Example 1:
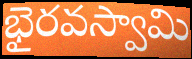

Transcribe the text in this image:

భైరవస్వామి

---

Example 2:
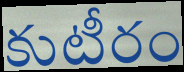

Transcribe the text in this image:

కుటీరం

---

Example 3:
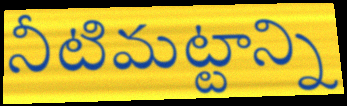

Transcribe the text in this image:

నీటిమట్టాన్ని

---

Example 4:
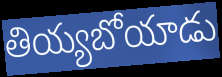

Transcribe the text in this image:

తియ్యబోయాడు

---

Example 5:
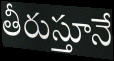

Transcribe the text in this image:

తీరుస్తూనే